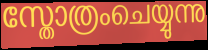
സ്തോത്രംചെയ്യുന്നു